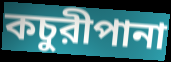
কচুরীপানা